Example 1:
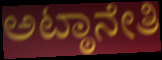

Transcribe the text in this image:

ಅಟ್ಠಾನೇತಿ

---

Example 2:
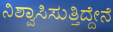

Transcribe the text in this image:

ನಿಶ್ವಾಸಿಸುತ್ತಿದ್ದೇನೆ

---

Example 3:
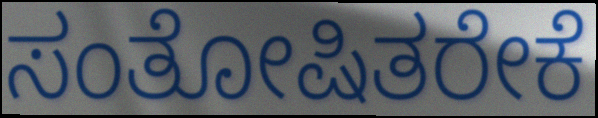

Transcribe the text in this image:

ಸಂತೋಷಿತರೇಕೆ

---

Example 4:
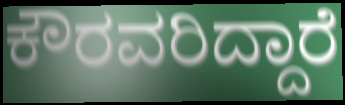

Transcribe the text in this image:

ಕೌರವರಿದ್ದಾರೆ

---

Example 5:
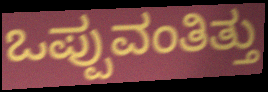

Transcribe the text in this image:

ಒಪ್ಪುವಂತಿತ್ತು